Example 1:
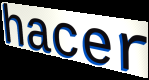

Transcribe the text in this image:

hacer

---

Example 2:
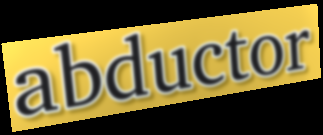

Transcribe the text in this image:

abductor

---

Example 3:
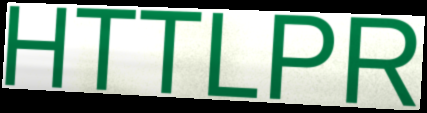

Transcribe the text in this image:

HTTLPR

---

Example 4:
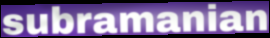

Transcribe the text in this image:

subramanian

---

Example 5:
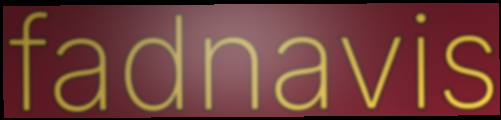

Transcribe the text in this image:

fadnavis